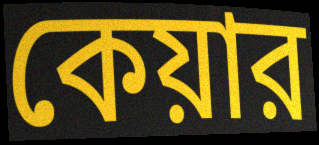
কেয়ার